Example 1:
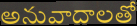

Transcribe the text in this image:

అనువాదాలతో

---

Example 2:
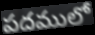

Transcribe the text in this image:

పదములో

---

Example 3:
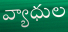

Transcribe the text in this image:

వ్యాధుల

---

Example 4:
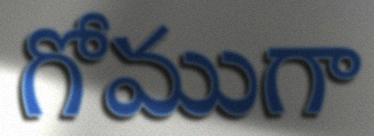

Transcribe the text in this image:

గోముగా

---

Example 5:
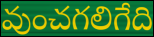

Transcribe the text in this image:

వుంచగలిగేది